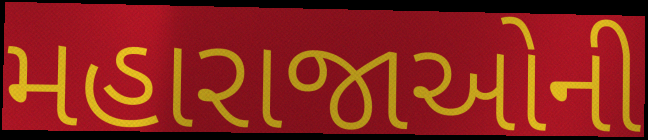
મહારાજાઓની